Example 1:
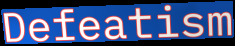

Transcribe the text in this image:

Defeatism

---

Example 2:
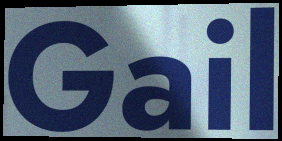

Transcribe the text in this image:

Gail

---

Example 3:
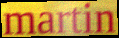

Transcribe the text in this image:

martin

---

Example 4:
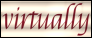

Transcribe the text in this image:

virtually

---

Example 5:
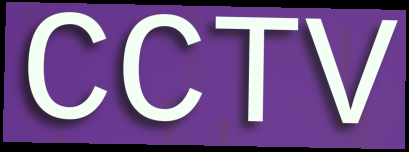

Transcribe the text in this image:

CCTV